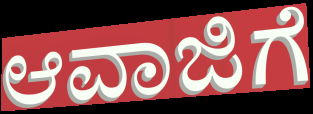
ಆವಾಜಿಗೆ